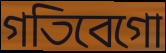
গতিবেগো